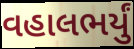
વહાલભર્યું